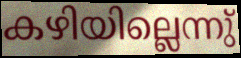
കഴിയില്ലെന്നു്